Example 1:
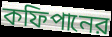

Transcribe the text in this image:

কফিপানের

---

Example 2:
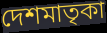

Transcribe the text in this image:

দেশমাতৃকা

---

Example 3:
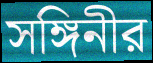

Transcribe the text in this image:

সঙ্গিনীর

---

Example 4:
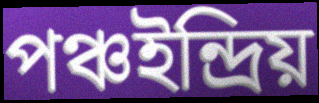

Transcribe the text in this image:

পঞ্চইন্দ্রিয়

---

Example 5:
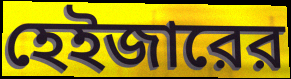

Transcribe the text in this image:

হেইজারের